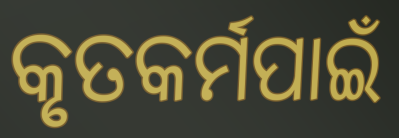
କୃତକର୍ମପାଇଁ